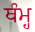
ਥੰਮ੍ਹ